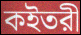
কইতরী